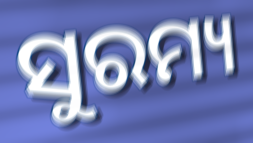
ସୁରମ୍ୟ